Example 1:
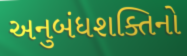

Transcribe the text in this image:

અનુબંધશક્તિનો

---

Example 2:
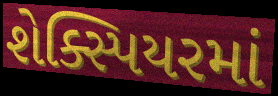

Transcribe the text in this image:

શેક્સ્પિયરમાં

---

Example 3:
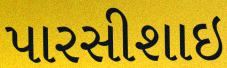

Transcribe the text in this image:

પારસીશાઇ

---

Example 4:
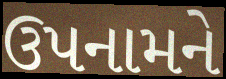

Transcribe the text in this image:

ઉપનામને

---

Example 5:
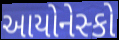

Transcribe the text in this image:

આયોનેસ્કો